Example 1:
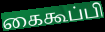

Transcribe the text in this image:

கைகூப்பி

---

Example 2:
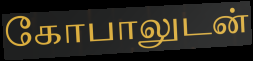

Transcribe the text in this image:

கோபாலுடன்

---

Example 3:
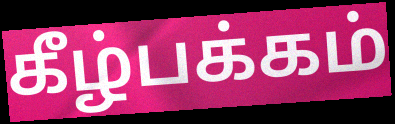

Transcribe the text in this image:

கீழ்பக்கம்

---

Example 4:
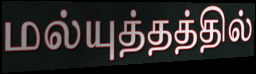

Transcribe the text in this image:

மல்யுத்தத்தில்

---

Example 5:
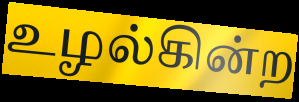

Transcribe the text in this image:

உழல்கின்ற